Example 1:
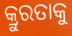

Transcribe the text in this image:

କ୍ରୁରତାକୁ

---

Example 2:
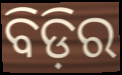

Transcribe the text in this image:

ବିଡ଼ିର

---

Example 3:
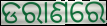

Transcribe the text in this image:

ଡରାଣରେ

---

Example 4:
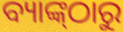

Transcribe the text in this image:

ବ୍ୟାଙ୍କ୍‌ଠାରୁ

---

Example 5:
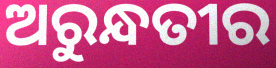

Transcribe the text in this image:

ଅରୁନ୍ଧତୀର